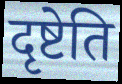
दृष्टेति